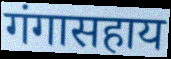
गंगासहाय